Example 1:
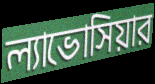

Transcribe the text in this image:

ল্যাভোসিয়ার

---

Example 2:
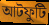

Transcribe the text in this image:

আটফুটি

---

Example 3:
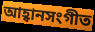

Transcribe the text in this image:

আহ্বানসংগীত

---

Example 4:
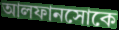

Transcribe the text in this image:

আলফানসোকে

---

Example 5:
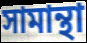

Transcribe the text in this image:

সামান্থা